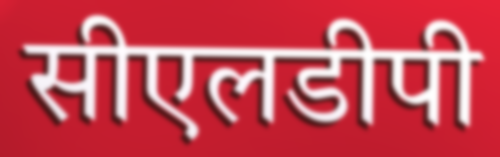
सीएलडीपी